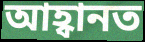
আহ্বানত